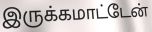
இருக்கமாட்டேன்